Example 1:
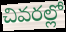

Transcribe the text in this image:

చివరల్లో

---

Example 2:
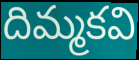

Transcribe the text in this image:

దిమ్మకవి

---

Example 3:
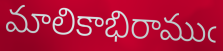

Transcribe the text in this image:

మాలికాభిరాముఁ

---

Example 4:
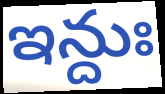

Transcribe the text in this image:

ఇన్దుః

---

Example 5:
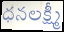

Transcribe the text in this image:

ధనలక్ష్మీ